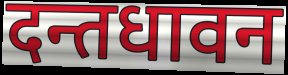
दन्तधावन